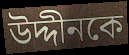
উদ্দীনকে